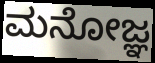
ಮನೋಜ್ಞ